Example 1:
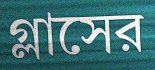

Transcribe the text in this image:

গ্লাসের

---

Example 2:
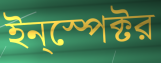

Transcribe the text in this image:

ইন্‌স্পেক্টর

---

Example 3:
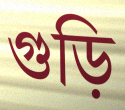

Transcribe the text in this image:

গুড়ি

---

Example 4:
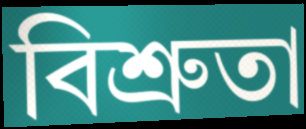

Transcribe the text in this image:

বিশ্রুতা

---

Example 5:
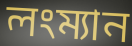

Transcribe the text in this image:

লংম্যান